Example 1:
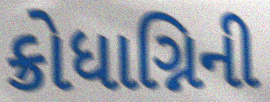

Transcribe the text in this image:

ક્રોધાગ્નિની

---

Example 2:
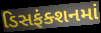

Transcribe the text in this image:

ડિસફંક્શનમાં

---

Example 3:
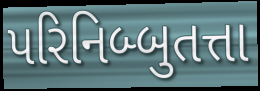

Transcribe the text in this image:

પરિનિબ્બુતત્તા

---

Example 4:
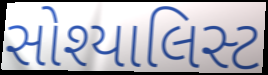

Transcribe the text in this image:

સોશ્યાલિસ્ટ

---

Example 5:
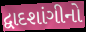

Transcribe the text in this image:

દ્વાદશાંગીનો